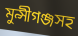
মুন্সীগঞ্জসহ